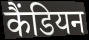
कैंडियन